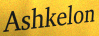
Ashkelon